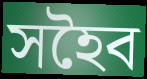
সহৈব